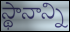
స్థానాన్ని